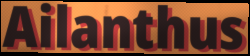
Ailanthus